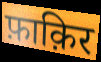
फ़ाक़िर